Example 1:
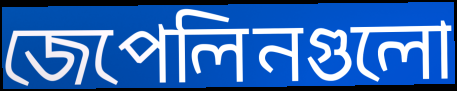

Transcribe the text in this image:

জেপেলিনগুলো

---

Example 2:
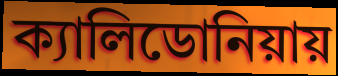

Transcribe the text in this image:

ক্যালিডোনিয়ায়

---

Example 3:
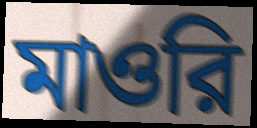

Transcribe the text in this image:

মাওরি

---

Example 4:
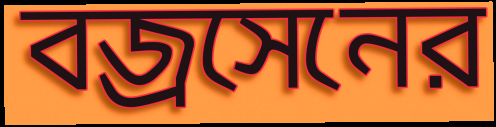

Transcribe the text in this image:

বজ্রসেনের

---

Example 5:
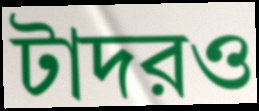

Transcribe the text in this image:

টাদরও